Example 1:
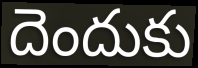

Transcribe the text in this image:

దెందుకు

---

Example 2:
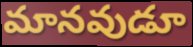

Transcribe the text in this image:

మానవుడూ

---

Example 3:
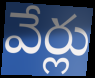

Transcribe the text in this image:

వేర్లు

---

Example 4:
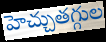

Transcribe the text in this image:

హెచ్చుతగ్గుల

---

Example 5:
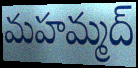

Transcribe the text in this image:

మహమ్మద్